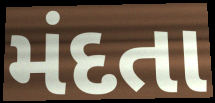
મંદતા